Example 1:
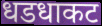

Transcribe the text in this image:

धडधाकट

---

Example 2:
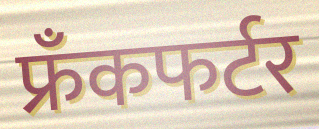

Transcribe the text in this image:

फ्रँकफर्टर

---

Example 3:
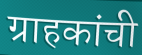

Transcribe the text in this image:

ग्राहकांची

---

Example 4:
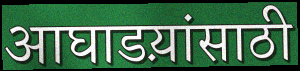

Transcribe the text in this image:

आघाडय़ांसाठी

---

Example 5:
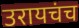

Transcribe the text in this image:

उरायचंच